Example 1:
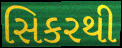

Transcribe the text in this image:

સિકરથી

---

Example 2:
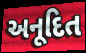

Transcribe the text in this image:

અનૂદિત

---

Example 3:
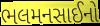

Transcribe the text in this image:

ભલમનસાઈનો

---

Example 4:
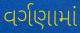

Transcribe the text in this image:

વર્ગણામાં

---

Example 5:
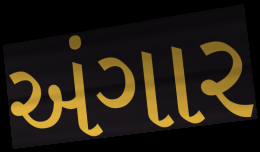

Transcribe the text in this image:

અંગાર